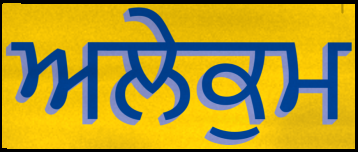
ਅਲੇਕੁਮ